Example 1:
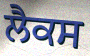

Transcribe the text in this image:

ਲੈਕਸ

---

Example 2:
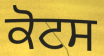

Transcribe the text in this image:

ਕੋਟਸ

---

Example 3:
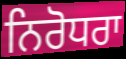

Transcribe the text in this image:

ਨਿਰੋਧਰਾ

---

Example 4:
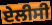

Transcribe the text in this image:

ਏਲੀਸੀ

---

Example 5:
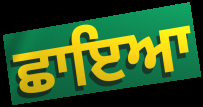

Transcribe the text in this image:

ਛਾਇਆ